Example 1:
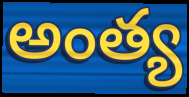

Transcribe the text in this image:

అంత్య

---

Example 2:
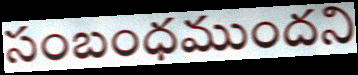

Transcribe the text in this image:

సంబంధముందని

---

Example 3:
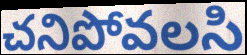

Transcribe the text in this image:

చనిపోవలసి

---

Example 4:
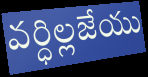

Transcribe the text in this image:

వర్ధిల్లజేయు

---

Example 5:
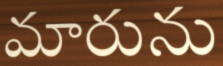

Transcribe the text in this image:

మారును